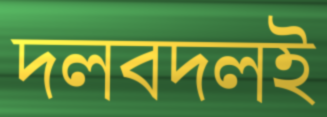
দলবদলই